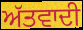
ਅੱਤਵਾਦੀ